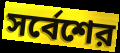
সর্বেশের